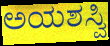
ಅಯಶಸ್ವಿ